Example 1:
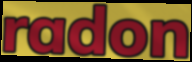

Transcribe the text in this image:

radon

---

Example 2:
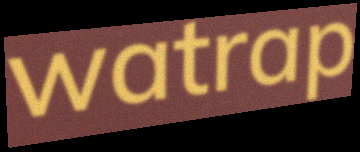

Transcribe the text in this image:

watrap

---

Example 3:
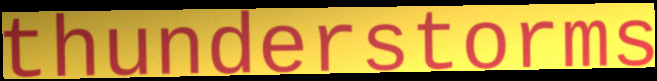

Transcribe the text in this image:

thunderstorms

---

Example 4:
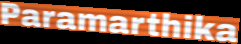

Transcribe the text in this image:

Paramarthika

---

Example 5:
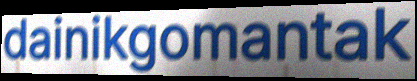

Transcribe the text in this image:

dainikgomantak